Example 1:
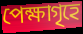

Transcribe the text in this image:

পেক্ষাগৃহে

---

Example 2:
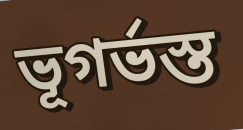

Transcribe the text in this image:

ভূগর্ভস্ত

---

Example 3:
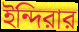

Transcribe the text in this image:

ইন্দিরার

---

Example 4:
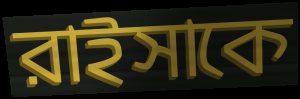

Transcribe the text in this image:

রাইসাকে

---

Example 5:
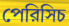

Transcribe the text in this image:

পেরিসিচ